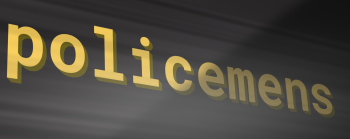
policemens